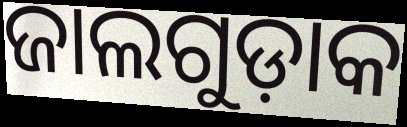
ଜାଲଗୁଡ଼ାକ